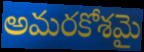
అమరకోశమై